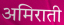
अमिराती